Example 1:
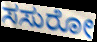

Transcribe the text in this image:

ಸಸುರೋ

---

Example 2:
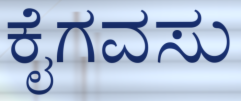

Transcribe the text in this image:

ಕೈಗವಸು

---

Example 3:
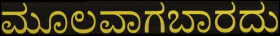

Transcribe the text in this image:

ಮೂಲವಾಗಬಾರದು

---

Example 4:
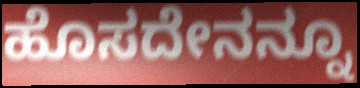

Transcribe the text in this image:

ಹೊಸದೇನನ್ನೂ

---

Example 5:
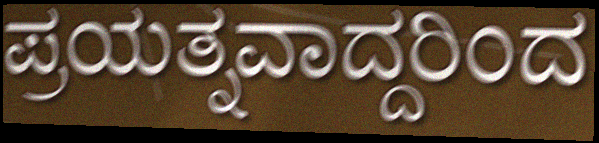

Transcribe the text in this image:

ಪ್ರಯತ್ನವಾದ್ದರಿಂದ